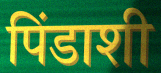
पिंडाशी